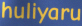
huliyaru